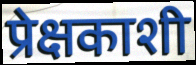
प्रेक्षकाशी